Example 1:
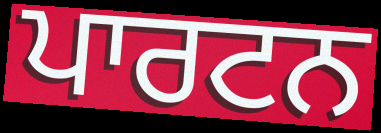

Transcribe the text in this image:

ਪਾਰਟਨ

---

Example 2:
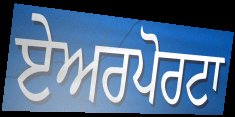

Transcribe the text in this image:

ਏਅਰਪੋਰਟਾ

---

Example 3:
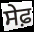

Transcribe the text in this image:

ਸੇਫ਼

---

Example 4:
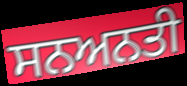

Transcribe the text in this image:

ਸਨਅਨਤੀ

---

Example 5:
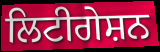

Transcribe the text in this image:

ਲਿਟੀਗੇਸ਼ਨ